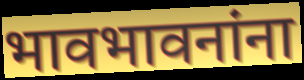
भावभावनांना